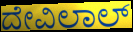
ದೇವಿಲಾಲ್